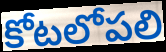
కోటలోపలి